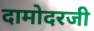
दामोदरजी